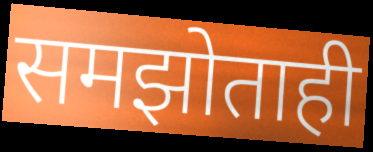
समझोताही